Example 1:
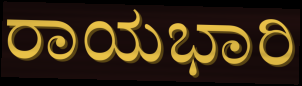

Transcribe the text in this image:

ರಾಯಭಾರಿ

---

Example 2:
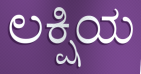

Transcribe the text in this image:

ಲಕ್ಷಿಯ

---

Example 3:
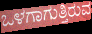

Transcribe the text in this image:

ಒಳಗಾಗುತ್ತಿರುವ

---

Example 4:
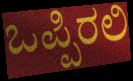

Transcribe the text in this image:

ಒಪ್ಪಿರಲಿ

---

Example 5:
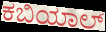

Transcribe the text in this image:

ಕಬಿಯಾಲ್